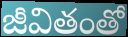
జీవితంతో